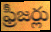
ఫ్రీజర్లు